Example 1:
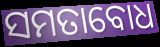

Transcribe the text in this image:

ସମତାବୋଧ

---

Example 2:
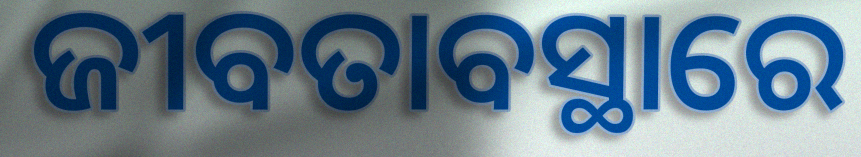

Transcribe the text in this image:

ଜୀବତାବସ୍ଥାରେ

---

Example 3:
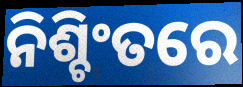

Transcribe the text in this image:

ନିଶ୍ଚିଂତରେ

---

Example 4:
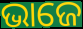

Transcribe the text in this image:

ଭାଜେ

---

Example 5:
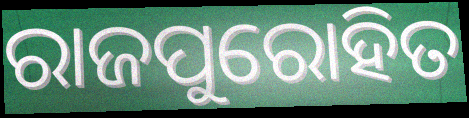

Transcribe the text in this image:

ରାଜପୁରୋହିତ